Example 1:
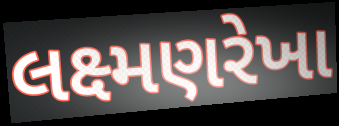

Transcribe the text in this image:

લક્ષ્મણરેખા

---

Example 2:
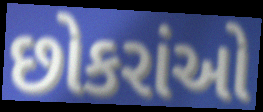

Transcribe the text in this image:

છોકરાંઓ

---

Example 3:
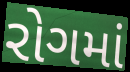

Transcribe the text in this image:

રોગમાં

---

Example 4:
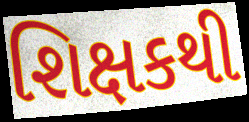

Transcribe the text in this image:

શિક્ષકથી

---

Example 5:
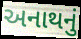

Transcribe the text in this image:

અનાથનું